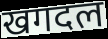
खगदल